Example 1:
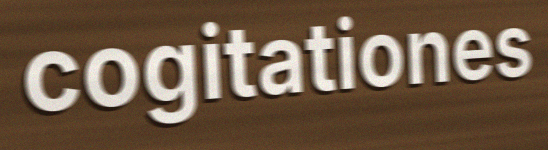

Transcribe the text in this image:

cogitationes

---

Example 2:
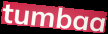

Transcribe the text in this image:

tumbaa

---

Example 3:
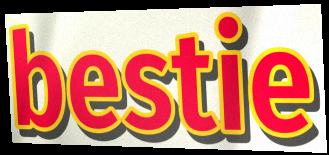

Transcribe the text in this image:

bestie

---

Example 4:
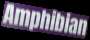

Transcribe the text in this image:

Amphibian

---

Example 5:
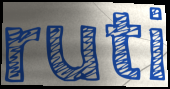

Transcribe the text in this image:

ruti